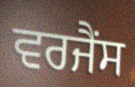
ਵਰਜੈਂਸ